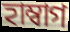
হাম্বাগ